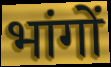
भांगों